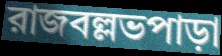
রাজবল্লভপাড়া